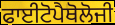
ਫਾਈਟੋਪੈਥੋਲੋਜੀ